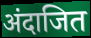
अंदाजित